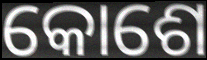
କୋଶେ